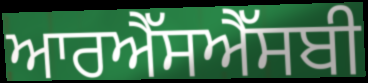
ਆਰਐੱਸਐੱਸਬੀ